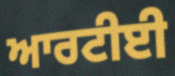
ਆਰਟੀਈ